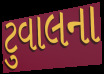
ટુવાલના